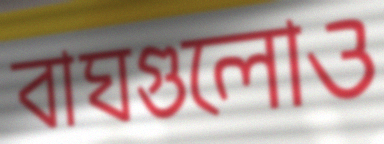
বাঘগুলোও